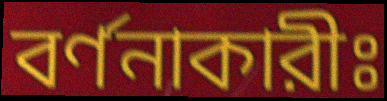
বর্ণনাকারীঃ